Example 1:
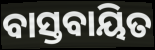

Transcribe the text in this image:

ବାସ୍ତବାୟିତ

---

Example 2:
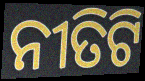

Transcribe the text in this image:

ନୀତିଟି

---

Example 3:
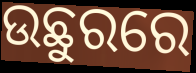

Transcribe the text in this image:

ଉଛୁରରେ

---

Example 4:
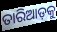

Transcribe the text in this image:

ତାରିଆଡ଼କୁ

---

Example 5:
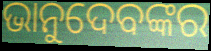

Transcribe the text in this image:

ଭାନୁଦେବଙ୍କର